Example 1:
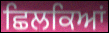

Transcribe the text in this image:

ਛਿਲਕਿਆਂ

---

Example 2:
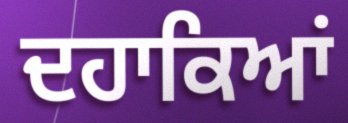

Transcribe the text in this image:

ਦਹਾਕਿਆਂ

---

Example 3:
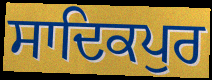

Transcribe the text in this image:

ਸਾਦਿਕਪੁਰ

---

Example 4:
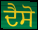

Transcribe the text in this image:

ਦੈਸੋ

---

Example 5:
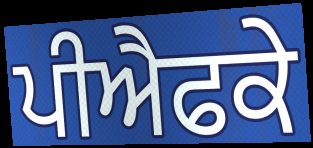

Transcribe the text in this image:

ਪੀਐਫਕੇ